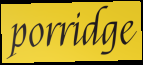
porridge